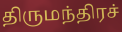
திருமந்திரச்